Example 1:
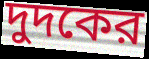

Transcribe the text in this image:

দুদকের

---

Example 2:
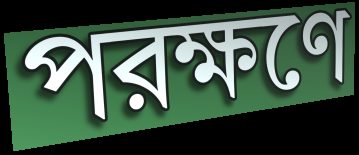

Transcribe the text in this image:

পরক্ষণে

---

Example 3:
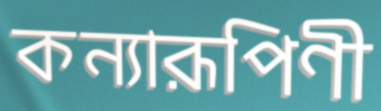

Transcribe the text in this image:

কন্যারূপিণী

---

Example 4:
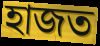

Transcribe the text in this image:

হাজত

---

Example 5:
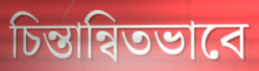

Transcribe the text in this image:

চিন্তান্বিতভাবে